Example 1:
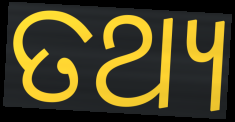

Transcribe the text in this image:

ତଥ୍ୟ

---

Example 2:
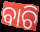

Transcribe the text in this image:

ବାଚି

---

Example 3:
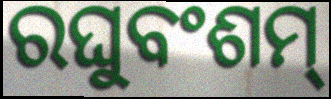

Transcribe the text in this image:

ରଘୁବଂଶମ୍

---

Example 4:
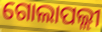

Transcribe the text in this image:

ଗୋଲାପଲ୍ଲୀ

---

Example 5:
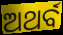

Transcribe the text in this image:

ଅଥର୍ବ